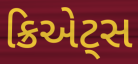
ક્રિએટ્સ